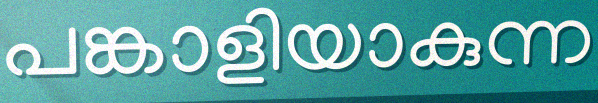
പങ്കാളിയാകുന്ന